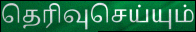
தெரிவுசெய்யும்